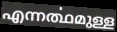
എന്നൎത്ഥമുള്ള